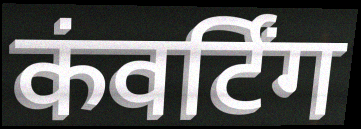
कंवर्टिंग